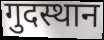
गुदस्थान